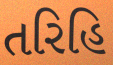
તરિહિ